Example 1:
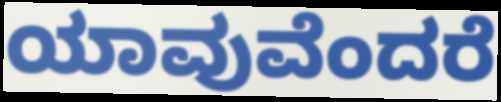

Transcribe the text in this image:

ಯಾವುವೆಂದರೆ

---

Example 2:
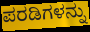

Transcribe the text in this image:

ಪರಡಿಗಳನ್ನು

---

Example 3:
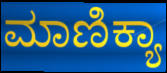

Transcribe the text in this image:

ಮಾಣಿಕ್ಯಾ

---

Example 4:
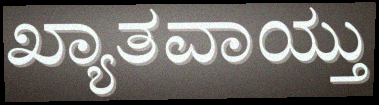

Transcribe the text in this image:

ಖ್ಯಾತವಾಯ್ತು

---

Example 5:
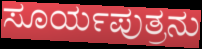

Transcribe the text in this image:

ಸೂರ್ಯಪುತ್ರನು